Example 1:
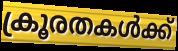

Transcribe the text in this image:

ക്രൂരതകൾക്ക്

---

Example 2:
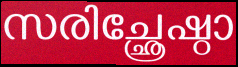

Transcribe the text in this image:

സരിച്ഛ്രേഷ്ഠാ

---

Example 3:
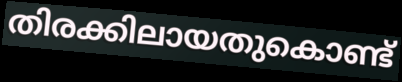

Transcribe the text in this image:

തിരക്കിലായതുകൊണ്ട്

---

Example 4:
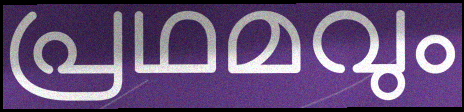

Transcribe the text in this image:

പ്രഥമവും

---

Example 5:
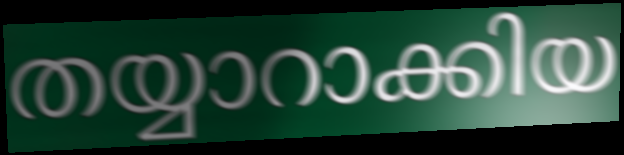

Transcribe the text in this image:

തയ്യാറാക്കിയ